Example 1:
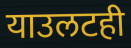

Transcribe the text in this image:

याउलटही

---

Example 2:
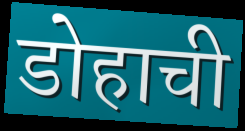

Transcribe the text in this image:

डोहाची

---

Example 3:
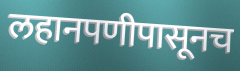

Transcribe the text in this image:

लहानपणीपासूनच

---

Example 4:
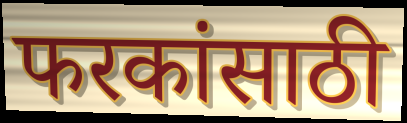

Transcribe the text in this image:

फरकांसाठी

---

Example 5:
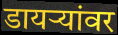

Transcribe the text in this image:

डायऱ्यांवर